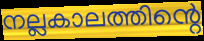
നല്ലകാലത്തിന്റെ